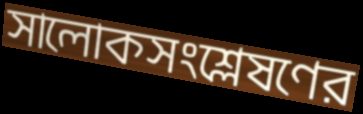
সালোকসংশ্লেষণের